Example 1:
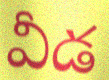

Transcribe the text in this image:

వీడ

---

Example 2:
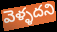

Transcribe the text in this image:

వెళ్ళదని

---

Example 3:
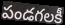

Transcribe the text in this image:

పండగలకీ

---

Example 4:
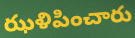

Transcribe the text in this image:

ఝళిపించారు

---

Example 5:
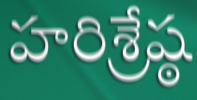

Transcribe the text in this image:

హరిశ్రేష్ఠ